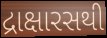
દ્રાક્ષારસથી